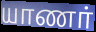
யாணர்